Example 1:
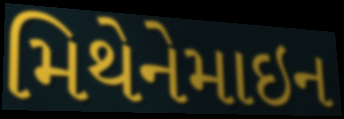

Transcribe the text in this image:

મિથેનેમાઇન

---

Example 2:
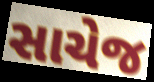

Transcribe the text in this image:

સાચેજ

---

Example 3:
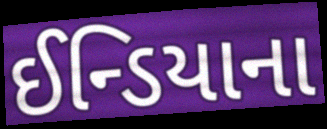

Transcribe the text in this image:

ઈન્ડિયાના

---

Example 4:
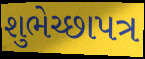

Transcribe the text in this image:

શુભેચ્છાપત્ર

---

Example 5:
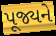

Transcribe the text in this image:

પૂજ્યને